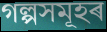
গল্পসমূহৰ